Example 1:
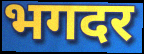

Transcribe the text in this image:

भगदर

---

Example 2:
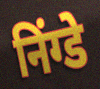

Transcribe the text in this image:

निंग्डे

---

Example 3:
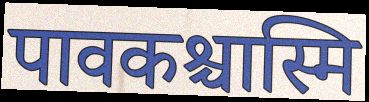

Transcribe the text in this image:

पावकश्चास्मि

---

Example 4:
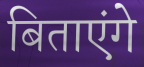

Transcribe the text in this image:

बिताएंगे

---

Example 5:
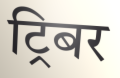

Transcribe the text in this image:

ट्रिबर